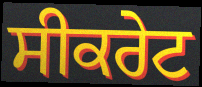
ਸੀਕਰੇਟ